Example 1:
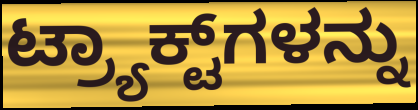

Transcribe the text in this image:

ಟ್ರ್ಯಾಕ್ಟ್‌ಗಳನ್ನು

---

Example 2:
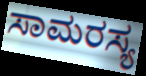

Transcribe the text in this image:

ಸಾಮರಸ್ಯ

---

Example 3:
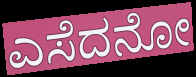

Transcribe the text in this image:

ಎಸೆದನೋ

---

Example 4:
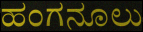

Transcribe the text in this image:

ಹಂಗನೂಲು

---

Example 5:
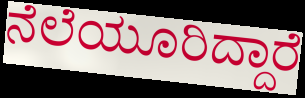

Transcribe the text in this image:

ನೆಲೆಯೂರಿದ್ದಾರೆ